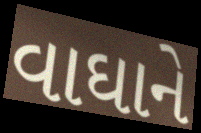
વાઘાને